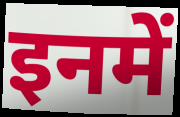
इनमें